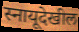
स्नायूदेखील